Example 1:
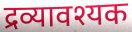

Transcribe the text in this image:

द्रव्यावश्यक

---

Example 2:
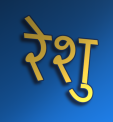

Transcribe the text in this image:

रेशु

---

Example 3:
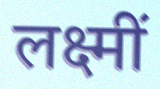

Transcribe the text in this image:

लक्ष्मीं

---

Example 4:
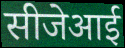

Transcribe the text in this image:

सीजेआई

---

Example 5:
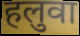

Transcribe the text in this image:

हलुवा